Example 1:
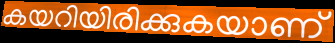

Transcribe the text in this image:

കയറിയിരിക്കുകയാണ്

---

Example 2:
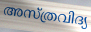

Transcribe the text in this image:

അസ്ത്രവിദ്യ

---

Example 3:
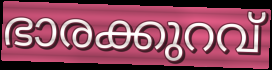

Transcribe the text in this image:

ഭാരക്കുറവ്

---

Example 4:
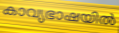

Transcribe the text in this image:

കാവ്യഭാഷയിൽ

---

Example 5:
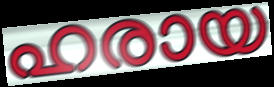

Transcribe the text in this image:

ഹരായ